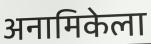
अनामिकेला